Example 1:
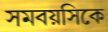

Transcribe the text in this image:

সমবয়সিকে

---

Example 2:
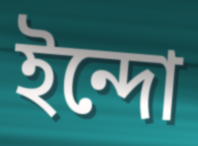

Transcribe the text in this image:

ইন্দো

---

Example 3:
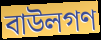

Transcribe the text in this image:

বাউলগণ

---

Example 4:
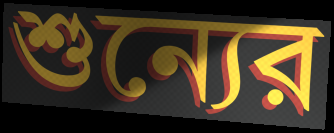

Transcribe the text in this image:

শুন্যের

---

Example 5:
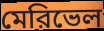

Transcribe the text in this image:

মেরিভেল